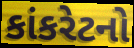
કાંકરેટનો